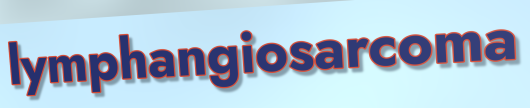
lymphangiosarcoma